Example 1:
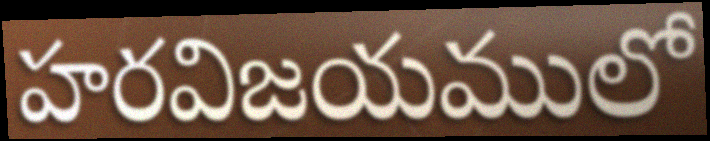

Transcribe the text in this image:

హరవిజయములో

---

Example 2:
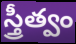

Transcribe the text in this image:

స్త్రీత్వం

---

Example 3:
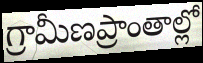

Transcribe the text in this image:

గ్రామీణప్రాంతాల్లో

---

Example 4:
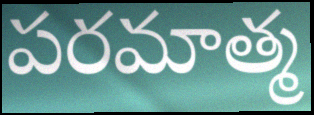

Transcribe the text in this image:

పరమాత్మ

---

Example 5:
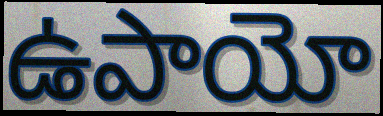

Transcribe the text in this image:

ఉపాయో